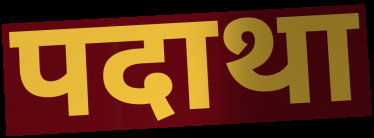
पदाथा